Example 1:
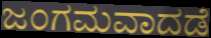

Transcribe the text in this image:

ಜಂಗಮವಾದಡೆ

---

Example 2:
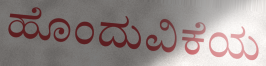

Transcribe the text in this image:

ಹೊಂದುವಿಕೆಯ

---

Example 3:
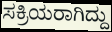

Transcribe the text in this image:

ಸಕ್ರಿಯರಾಗಿದ್ದು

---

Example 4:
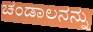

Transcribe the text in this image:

ಚಂಡಾಲನನ್ನು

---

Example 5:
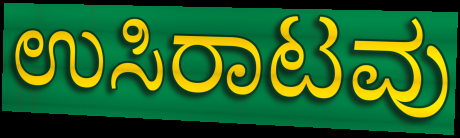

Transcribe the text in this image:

ಉಸಿರಾಟವು